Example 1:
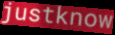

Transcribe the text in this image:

justknow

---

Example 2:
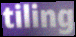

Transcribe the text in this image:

tiling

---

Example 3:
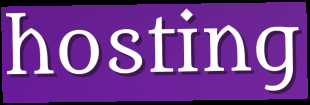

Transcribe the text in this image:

hosting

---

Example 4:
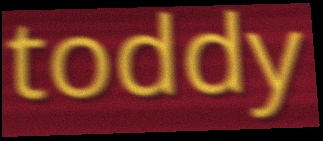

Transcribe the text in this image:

toddy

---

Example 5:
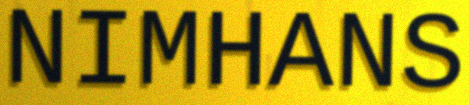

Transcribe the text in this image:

NIMHANS